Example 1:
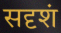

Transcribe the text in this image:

सदृशं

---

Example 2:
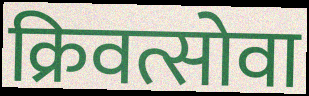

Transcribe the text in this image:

क्रिवत्सोवा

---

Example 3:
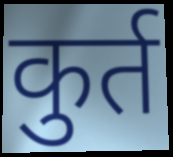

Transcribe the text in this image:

कुर्त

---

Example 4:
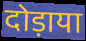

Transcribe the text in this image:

दोड़ाया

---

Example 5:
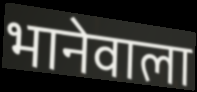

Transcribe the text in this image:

भानेवाला